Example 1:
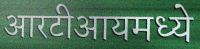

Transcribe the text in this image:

आरटीआयमध्ये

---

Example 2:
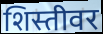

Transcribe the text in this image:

शिस्तीवर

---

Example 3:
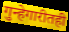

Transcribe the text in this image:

गुन्हेगारीतही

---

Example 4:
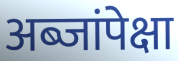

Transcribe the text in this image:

अब्जांपेक्षा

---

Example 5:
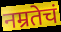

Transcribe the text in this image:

नम्रतेचं